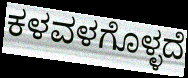
ಕಳವಳಗೊಳ್ಳದೆ